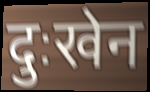
दुःखेन